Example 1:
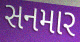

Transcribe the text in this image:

સનમાર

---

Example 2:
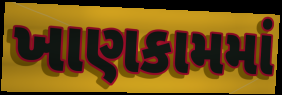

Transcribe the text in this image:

ખાણકામમાં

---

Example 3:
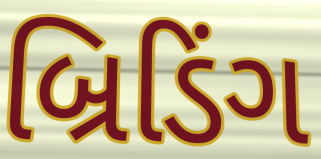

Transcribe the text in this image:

બ્રિડિંગ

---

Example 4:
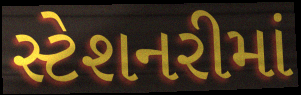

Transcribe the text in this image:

સ્ટેશનરીમાં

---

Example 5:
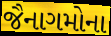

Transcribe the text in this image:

જૈનાગમોના